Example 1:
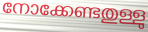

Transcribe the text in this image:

നോക്കേണ്ടതുള്ളു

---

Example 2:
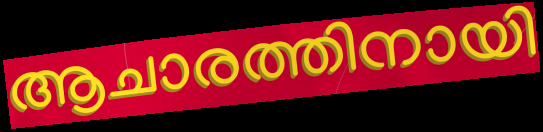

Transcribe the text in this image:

ആചാരത്തിനായി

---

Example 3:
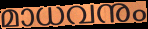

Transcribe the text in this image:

മാധവനും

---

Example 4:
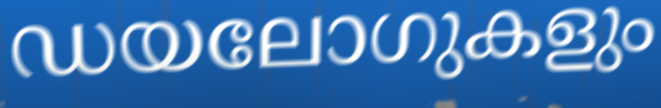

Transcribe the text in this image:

ഡയലോഗുകളും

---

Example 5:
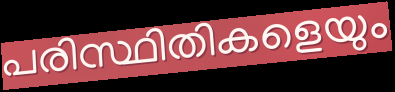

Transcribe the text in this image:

പരിസ്ഥിതികളെയും